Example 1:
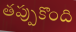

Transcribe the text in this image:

తప్పుకొంది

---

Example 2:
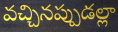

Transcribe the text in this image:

వచ్చినప్పుడల్లా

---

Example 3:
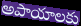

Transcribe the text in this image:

అపాయాలకు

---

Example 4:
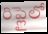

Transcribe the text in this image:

రిప్లైలో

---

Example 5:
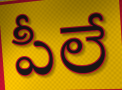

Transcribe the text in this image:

పీలే